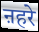
ऩहरे